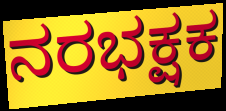
ನರಭಕ್ಷಕ